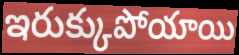
ఇరుక్కుపోయాయి